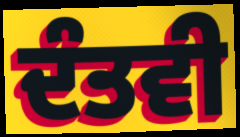
ਦੰਤਵੀ